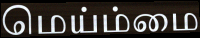
மெய்ம்மை